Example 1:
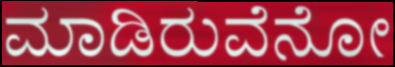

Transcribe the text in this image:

ಮಾಡಿರುವೆನೋ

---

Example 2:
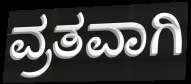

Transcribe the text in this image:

ವ್ರತವಾಗಿ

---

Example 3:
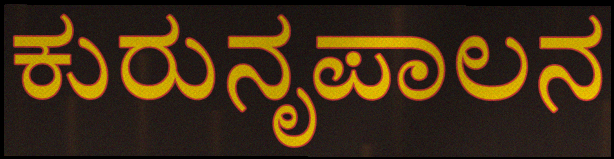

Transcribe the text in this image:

ಕುರುನೃಪಾಲನ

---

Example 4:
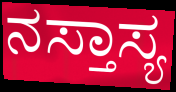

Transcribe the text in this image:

ನಸ್ತಾಸ್ಯ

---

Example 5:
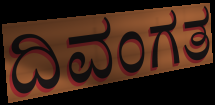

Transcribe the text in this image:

ದಿವಂಗತ